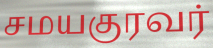
சமயகுரவர்